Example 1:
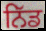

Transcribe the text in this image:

ਨਿੱਡ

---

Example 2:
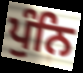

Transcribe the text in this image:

ਪੁੰਨਿ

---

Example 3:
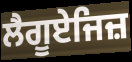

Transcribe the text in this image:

ਲੈਗੂਏਜਿਜ਼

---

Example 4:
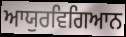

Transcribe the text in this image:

ਆਯੁਰਵਿਗਿਆਨ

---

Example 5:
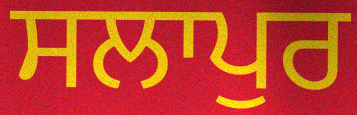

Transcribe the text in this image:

ਸਲਾਪੁਰ